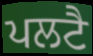
ਪਲਟੈ